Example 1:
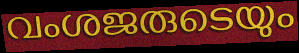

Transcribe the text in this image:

വംശജരുടെയും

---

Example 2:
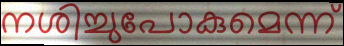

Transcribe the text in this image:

നശിച്ചുപോകുമെന്ന്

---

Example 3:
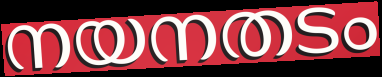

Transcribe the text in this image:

നയനതടം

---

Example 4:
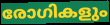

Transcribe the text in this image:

രോഗികളും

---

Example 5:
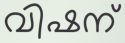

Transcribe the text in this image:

വിഷന്